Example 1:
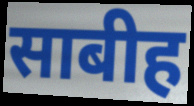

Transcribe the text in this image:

साबीह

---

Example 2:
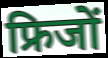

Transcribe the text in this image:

फ्रिजों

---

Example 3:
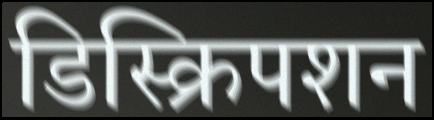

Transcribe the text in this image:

डिस्क्रिपशन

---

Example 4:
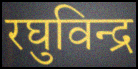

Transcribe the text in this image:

रघुविन्द्र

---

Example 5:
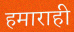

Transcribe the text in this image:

हमाराही